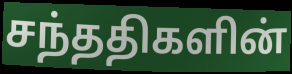
சந்ததிகளின்